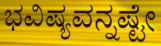
ಭವಿಷ್ಯವನ್ನಷ್ಟೇ